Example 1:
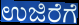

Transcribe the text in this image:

ಉಜಿರೆಗೆ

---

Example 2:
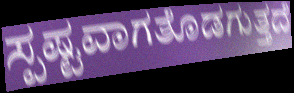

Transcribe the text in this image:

ಸ್ಪಷ್ಟವಾಗತೊಡಗುತ್ತದೆ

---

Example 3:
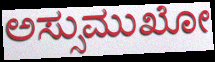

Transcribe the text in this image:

ಅಸ್ಸುಮುಖೋ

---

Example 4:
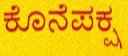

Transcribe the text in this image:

ಕೊನೆಪಕ್ಷ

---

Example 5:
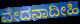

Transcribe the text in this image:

ವೇದನಾದೀಹಿ